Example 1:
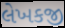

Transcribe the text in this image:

લેખકજી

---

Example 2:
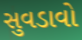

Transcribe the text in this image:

સુવડાવો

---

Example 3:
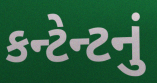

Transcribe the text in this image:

કન્ટેન્ટનું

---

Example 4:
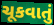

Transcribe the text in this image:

ચૂકવાતું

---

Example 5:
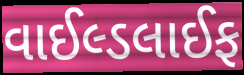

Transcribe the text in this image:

વાઈલ્ડલાઈફ